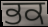
ਭਕ